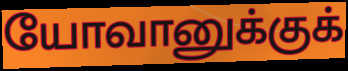
யோவானுக்குக்